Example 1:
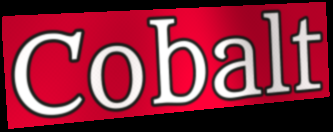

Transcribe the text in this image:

Cobalt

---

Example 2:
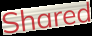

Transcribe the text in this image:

Shared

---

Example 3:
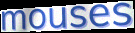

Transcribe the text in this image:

mouses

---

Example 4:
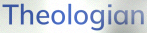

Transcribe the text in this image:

Theologian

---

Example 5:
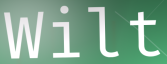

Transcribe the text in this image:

Wilt